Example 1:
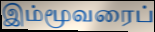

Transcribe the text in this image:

இம்மூவரைப்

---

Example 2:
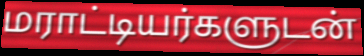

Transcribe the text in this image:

மராட்டியர்களுடன்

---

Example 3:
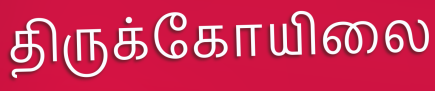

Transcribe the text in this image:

திருக்கோயிலை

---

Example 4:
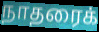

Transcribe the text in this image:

நாதரைக்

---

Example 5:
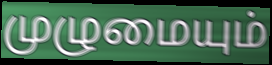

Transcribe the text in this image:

முழுமையும்